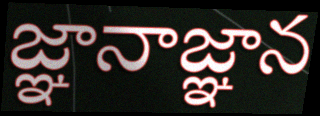
జ్ఞానాజ్ఞాన